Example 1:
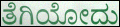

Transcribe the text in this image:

ತೆಗಿಯೋದು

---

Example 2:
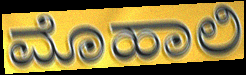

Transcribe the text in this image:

ಮೊಹಾಲಿ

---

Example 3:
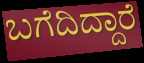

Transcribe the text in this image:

ಬಗೆದಿದ್ದಾರೆ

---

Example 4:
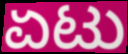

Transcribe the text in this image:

ಏಟು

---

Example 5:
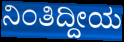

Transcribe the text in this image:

ನಿಂತಿದ್ದೀಯ